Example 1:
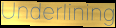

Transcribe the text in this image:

Underlining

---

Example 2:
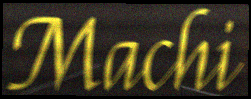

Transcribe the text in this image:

Machi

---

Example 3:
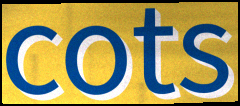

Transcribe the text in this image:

cots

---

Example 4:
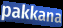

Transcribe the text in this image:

pakkana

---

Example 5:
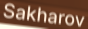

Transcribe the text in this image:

Sakharov